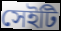
সেইটি